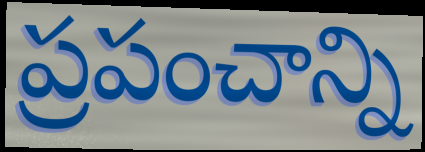
ప్రపంచాన్ని